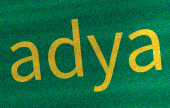
adya